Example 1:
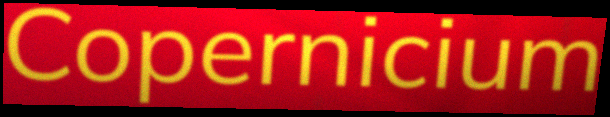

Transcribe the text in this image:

Copernicium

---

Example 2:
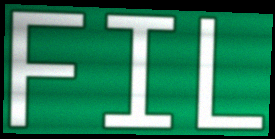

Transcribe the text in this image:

FIL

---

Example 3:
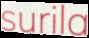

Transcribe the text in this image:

surila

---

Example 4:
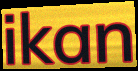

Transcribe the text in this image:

ikan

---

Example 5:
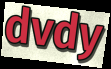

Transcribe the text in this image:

dvdy